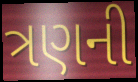
ત્રણની